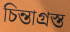
চিন্তাগ্রস্ত